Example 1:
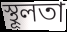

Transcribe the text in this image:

স্থূলতা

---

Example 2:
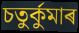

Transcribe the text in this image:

চতুৰ্কুমাৰ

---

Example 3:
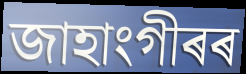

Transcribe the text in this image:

জাহাংগীৰৰ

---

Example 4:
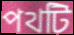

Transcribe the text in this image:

পথটি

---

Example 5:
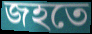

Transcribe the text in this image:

জহতে